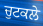
ਚੁਟਕਲੇ